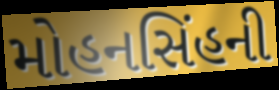
મોહનસિંહની